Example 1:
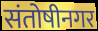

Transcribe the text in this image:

संतोषीनगर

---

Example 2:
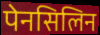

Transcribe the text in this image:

पेनसिलिन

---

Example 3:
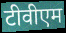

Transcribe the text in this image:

टीवीएम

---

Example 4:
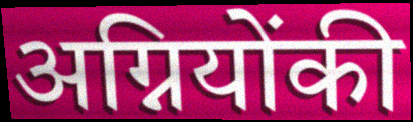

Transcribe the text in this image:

अग्नियोंकी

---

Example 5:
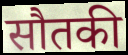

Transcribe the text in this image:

सौतकी